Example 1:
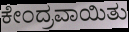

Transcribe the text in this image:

ಕೇಂದ್ರವಾಯಿತು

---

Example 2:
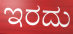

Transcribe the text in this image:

ಇರದು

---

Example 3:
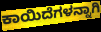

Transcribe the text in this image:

ಕಾಯಿದೆಗಳನ್ನಾಗಿ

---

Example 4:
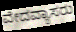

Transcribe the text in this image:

ವೇದವ್ಯಾಸರು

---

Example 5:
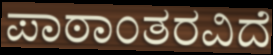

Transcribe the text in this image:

ಪಾಠಾಂತರವಿದೆ